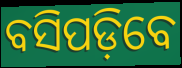
ବସିପଡ଼ିବେ